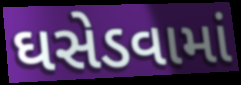
ઘસેડવામાં